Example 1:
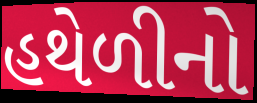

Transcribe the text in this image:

હથેળીનો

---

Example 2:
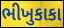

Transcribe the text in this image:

ભીખુકાકા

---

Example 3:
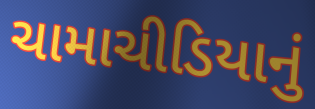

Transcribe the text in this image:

ચામાચીડિયાનું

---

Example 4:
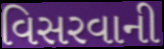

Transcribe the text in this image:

વિસરવાની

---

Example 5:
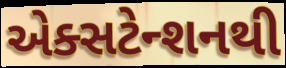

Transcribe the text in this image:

એક્સટેન્શનથી